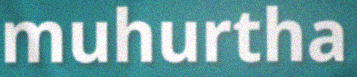
muhurtha